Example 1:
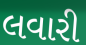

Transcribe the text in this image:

લવારી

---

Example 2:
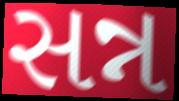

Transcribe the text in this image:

સન્ન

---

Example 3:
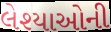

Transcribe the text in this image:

લેશ્યાઓની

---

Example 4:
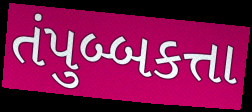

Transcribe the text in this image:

તંપુબ્બકત્તા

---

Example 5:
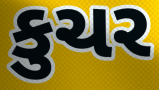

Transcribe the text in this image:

કુચર